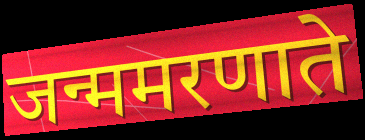
जन्ममरणाते